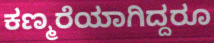
ಕಣ್ಮರೆಯಾಗಿದ್ದರೂ